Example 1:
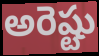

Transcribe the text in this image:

అరెష్టు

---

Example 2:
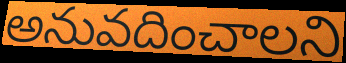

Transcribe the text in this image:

అనువదించాలని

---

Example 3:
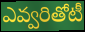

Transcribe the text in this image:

ఎవ్వరితోటీ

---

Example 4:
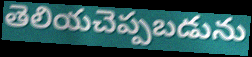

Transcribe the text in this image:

తెలియచెప్పబడును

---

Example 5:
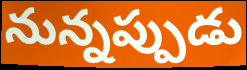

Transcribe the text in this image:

నున్నప్పుడు